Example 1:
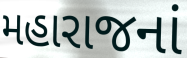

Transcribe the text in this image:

મહારાજનાં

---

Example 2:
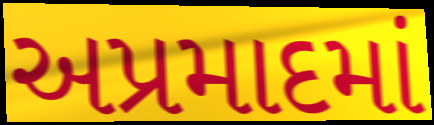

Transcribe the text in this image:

અપ્રમાદમાં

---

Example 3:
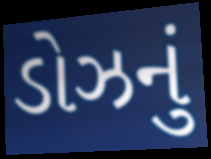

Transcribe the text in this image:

ડોઝનું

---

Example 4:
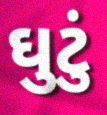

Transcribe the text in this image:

ઘુટું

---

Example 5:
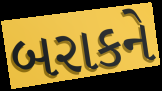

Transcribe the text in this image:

બરાકને